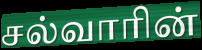
சல்வாரின்